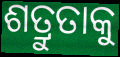
ଶତ୍ରୁତାକୁ